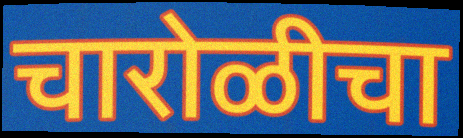
चारोळीचा